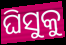
ଘିସୁକୁ